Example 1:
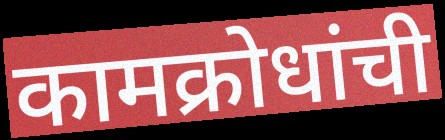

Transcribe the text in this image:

कामक्रोधांची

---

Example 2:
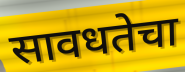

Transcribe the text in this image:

सावधतेचा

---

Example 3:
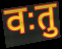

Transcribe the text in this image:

वःतु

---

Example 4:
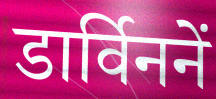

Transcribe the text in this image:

डार्विननें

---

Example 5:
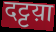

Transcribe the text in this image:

दट्टय़ा